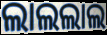
ଲାଲଲାଲ